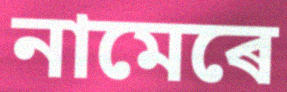
নামেৰে